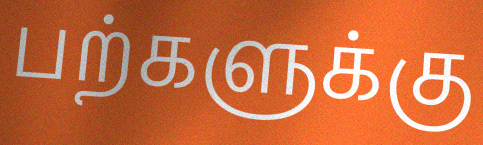
பற்களுக்கு